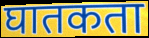
घातकता